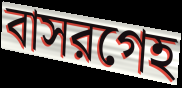
বাসরগেহ